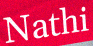
Nathi